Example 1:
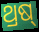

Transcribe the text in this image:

ଥ୍ରଷ୍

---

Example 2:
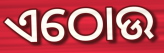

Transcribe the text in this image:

ଏଠୋଉ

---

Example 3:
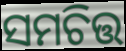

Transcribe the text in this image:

ସମଚିତ୍ତ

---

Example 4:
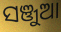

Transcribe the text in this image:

ସଞ୍ଜୁଆ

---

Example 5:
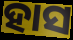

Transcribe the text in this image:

ହାସ